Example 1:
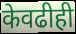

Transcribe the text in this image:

केवढीही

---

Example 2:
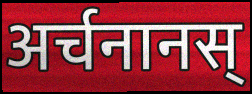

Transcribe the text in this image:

अर्चनानस्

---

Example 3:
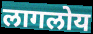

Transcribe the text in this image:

लागलोय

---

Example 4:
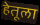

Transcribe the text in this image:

हेतूला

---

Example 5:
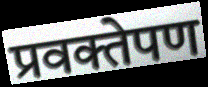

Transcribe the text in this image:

प्रवक्तेपण